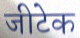
जीटेक